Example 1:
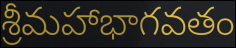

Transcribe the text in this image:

శ్రీమహాభాగవతం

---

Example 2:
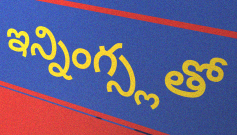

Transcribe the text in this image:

ఇన్నింగ్స్లతో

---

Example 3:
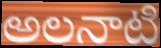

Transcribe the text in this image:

అలనాటి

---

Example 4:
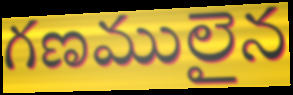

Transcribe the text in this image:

గణములైన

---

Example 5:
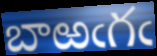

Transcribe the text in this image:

బాఱఁగఁ